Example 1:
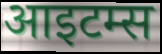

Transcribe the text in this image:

आइटम्स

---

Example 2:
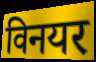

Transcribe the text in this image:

विनयर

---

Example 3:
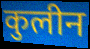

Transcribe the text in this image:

कुलीन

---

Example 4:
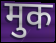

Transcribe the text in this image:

मुक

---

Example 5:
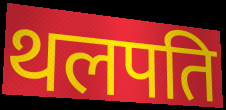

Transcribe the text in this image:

थलपति